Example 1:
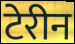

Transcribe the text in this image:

टेरीन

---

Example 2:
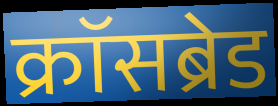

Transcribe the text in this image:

क्रॉसब्रेड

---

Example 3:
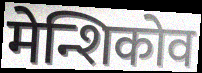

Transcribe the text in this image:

मेन्शिकोव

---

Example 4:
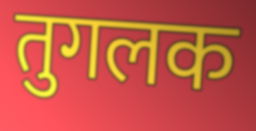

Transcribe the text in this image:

तुगलक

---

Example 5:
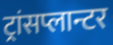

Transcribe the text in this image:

ट्रांसप्लान्टर